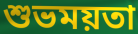
শুভময়তা